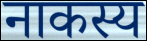
नाकस्य